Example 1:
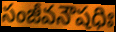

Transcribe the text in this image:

సంజీవనౌషధిః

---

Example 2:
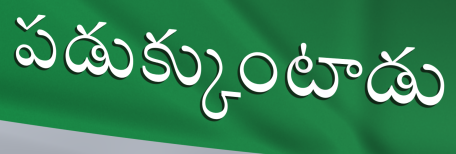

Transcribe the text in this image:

పడుక్కుంటాడు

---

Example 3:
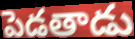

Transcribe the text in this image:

పెడతాడు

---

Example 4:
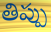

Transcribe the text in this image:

తిప్పు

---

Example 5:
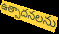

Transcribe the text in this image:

ఉత్పాదనలను